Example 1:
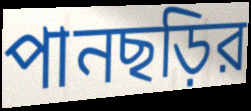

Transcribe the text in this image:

পানছড়ির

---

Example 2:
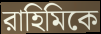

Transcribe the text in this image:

রাহিমিকে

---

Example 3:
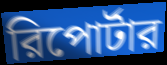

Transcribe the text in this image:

রিপোর্টার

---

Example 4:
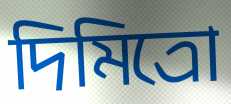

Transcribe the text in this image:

দিমিত্রো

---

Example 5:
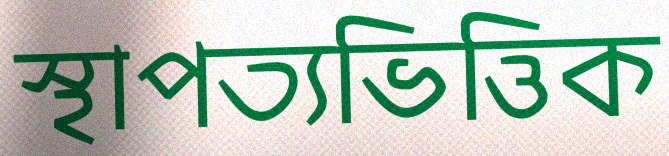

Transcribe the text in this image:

স্থাপত্যভিত্তিক